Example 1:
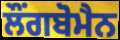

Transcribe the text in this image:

ਲੌਂਗਬੋਮੈਨ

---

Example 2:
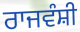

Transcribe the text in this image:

ਰਾਜਵੰਸ਼ੀ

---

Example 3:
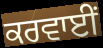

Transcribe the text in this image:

ਕਰਵਾਈਂ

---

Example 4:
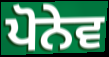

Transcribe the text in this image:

ਪੋਨੇਵ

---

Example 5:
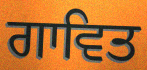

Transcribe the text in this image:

ਗਾਵਿਤ